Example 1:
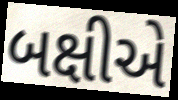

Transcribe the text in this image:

બક્ષીએ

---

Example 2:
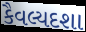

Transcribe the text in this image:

કૈવલ્યદશા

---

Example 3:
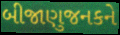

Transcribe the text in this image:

બીજાણુજનકને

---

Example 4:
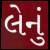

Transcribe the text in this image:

લેનું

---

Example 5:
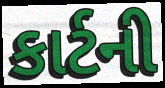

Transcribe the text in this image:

કાર્ટની